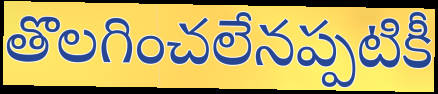
తొలగించలేనప్పటికీ